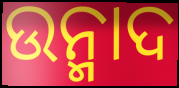
ଉନ୍ମାଦ